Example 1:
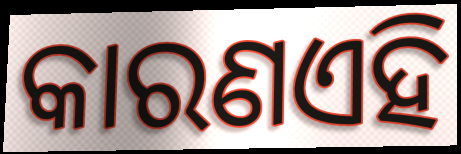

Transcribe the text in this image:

କାରଣଏହି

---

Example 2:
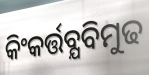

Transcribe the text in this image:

କିଂକର୍ତ୍ତବ୍ଯବିମୁଢ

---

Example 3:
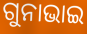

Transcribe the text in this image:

ଗୁନାଭାଇ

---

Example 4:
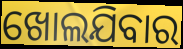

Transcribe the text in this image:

ଖୋଲଯିବାର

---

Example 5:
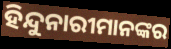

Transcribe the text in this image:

ହିନ୍ଦୁନାରୀମାନଙ୍କର